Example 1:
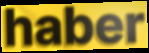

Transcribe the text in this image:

haber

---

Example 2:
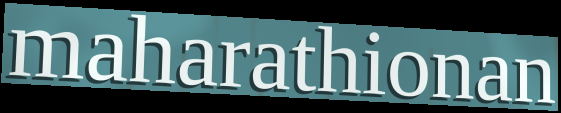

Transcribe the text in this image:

maharathionan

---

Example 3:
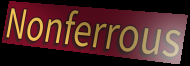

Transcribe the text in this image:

Nonferrous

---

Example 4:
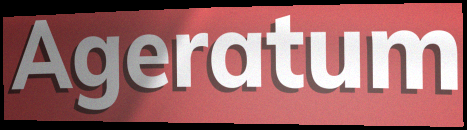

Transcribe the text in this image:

Ageratum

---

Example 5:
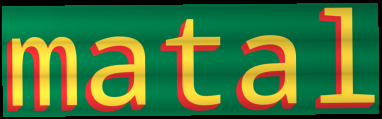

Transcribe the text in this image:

matal